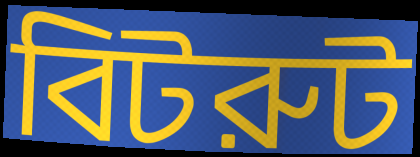
বিটরুট